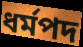
ধর্মপদ